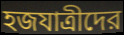
হজযাত্রীদের